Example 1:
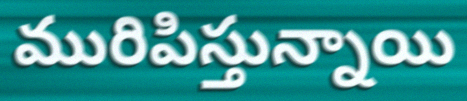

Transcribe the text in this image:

మురిపిస్తున్నాయి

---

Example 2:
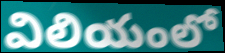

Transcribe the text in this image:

విలియంలో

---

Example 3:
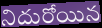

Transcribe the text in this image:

నిదురోయిన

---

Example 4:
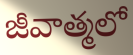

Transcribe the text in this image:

జీవాత్మలో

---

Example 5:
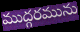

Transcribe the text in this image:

ముద్గరమును